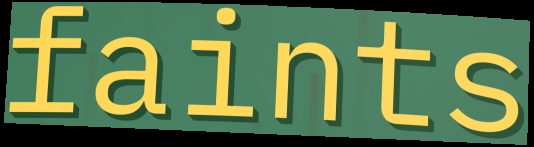
faints